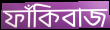
ফাঁকিবাজ